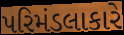
પરિમંડલાકારે